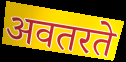
अवतरते